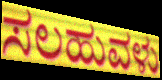
ಸಲಹುವಳು